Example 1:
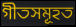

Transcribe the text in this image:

গীতসমূহত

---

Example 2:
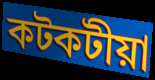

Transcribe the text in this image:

কটকটীয়া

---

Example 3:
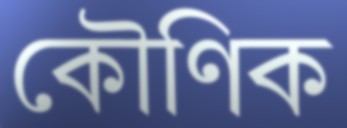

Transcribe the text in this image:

কৌণিক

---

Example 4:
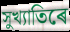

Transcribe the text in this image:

সুখ্যাতিৰে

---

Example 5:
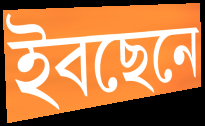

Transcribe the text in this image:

ইবছেনে